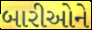
બારીઓને